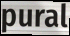
pural